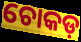
ଚୋକଡ଼